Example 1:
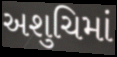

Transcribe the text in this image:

અશુચિમાં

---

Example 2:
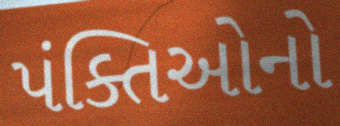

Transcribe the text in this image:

પંક્તિઓનો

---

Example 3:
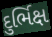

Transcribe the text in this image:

દુર્ભિક્ષ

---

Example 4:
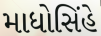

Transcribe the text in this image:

માધોસિંહે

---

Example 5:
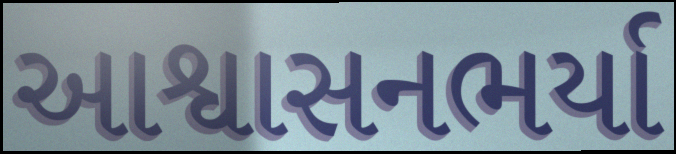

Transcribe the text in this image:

આશ્વાસનભર્યા